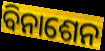
ବିନାଶେନ